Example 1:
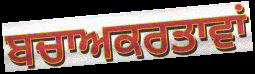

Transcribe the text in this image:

ਬਚਾਅਕਰਤਾਵਾਂ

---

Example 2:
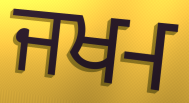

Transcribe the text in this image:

ਜਖ੍ਮ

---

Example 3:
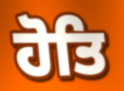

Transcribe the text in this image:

ਹੋਤਿ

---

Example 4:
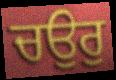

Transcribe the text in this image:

ਚਉਰੁ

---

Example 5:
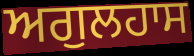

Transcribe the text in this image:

ਅਗੁਲਹਾਸ